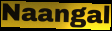
Naangal